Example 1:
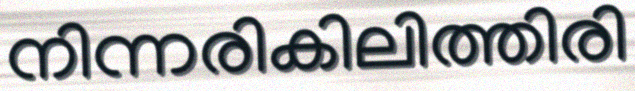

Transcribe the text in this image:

നിന്നരികിലിത്തിരി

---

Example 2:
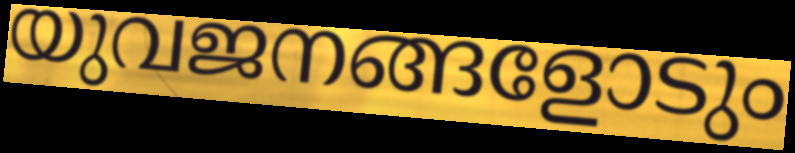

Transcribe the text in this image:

യുവജനങ്ങളോടും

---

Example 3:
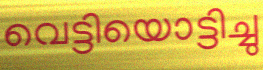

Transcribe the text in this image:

വെട്ടിയൊട്ടിച്ചു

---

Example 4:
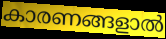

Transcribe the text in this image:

കാരണങ്ങളാൽ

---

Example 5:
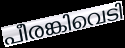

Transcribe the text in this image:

പീരങ്കിവെടി